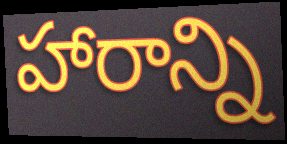
హారాన్ని